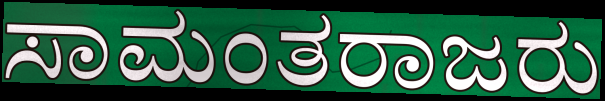
ಸಾಮಂತರಾಜರು